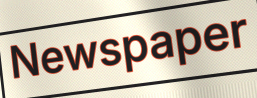
Newspaper